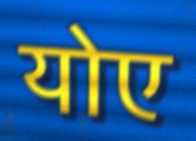
योए